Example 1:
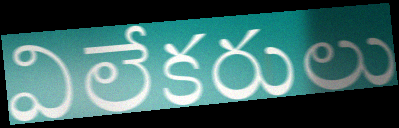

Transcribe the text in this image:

విలేకరులు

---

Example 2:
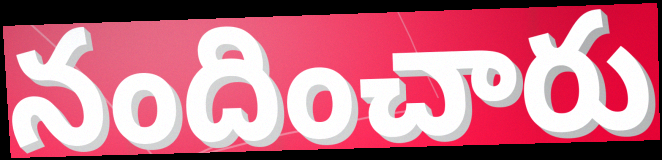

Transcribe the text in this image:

నందించారు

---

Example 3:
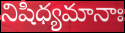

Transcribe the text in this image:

నిషిధ్యమానాః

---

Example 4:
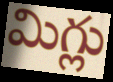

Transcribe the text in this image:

మిగ్లు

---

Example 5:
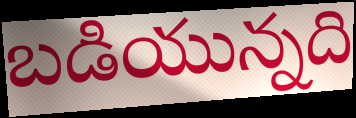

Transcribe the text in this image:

బడియున్నది